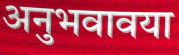
अनुभवावया